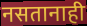
नसतानाही